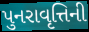
પુનરાવૃત્તિની